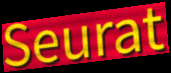
Seurat